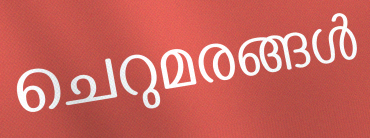
ചെറുമരങ്ങൾ